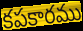
కపకారము